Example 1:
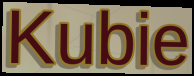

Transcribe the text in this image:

Kubie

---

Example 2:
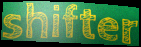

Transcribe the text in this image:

shifter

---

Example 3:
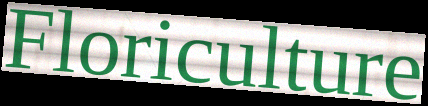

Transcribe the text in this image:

Floriculture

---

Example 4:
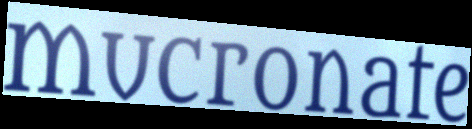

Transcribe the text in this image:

mucronate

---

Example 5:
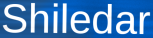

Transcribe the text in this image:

Shiledar